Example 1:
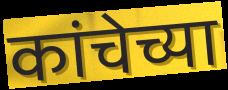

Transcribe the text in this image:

कांचेच्या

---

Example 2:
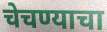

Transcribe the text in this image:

चेचण्याचा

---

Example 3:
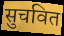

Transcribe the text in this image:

सुचवित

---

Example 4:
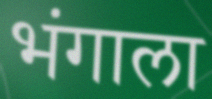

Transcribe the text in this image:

भंगाला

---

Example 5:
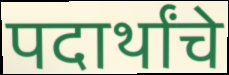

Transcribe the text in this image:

पदार्थांचे